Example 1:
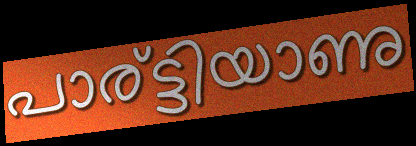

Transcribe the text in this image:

പാര്ട്ടിയാണു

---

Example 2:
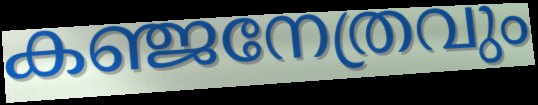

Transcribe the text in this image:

കഞ്ജനേത്രവും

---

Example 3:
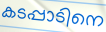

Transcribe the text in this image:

കടപ്പാടിനെ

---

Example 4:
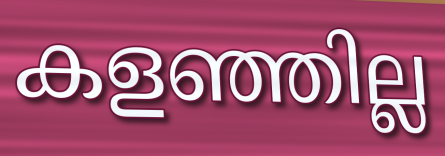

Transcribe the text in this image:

കളഞ്ഞില്ല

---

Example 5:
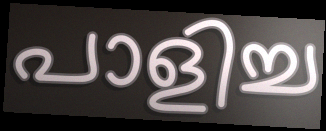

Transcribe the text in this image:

പാളിച്ച